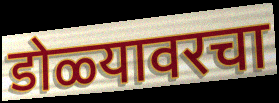
डोळ्यावरचा